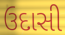
ઉદાસી